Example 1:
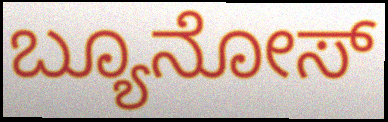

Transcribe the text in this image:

ಬ್ಯೂನೋಸ್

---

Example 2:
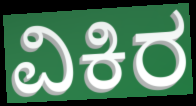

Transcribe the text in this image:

ವಿಕಿರ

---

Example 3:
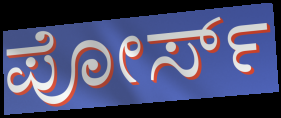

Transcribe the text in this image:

ಪೋರ್ಸ್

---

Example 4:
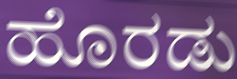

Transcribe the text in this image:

ಹೊರಡು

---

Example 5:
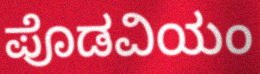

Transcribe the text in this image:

ಪೊಡವಿಯಂ